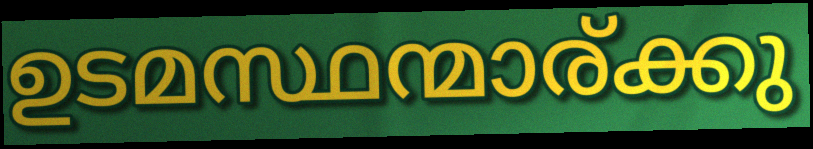
ഉടമസ്ഥന്മാര്ക്കു